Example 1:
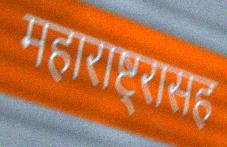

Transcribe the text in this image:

महाराष्ट्रासह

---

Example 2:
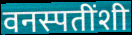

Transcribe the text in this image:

वनस्पतींशी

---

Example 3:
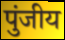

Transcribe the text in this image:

पुंजीय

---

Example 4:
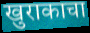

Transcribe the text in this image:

खुराकाचा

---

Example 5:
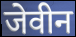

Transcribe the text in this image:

जेवीन